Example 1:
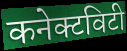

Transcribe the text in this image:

कनेक्टविटी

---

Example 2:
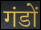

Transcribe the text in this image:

गंडों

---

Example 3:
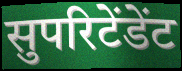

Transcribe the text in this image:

सुपरिटेंडेंट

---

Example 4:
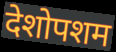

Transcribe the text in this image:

देशोपशम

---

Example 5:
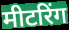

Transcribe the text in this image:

मीटरिंग